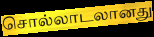
சொல்லாடலானது